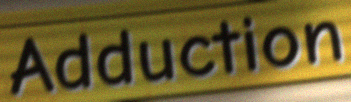
Adduction